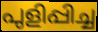
പുളിപ്പിച്ച